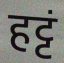
हट्टं